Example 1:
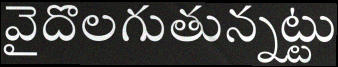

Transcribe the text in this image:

వైదొలగుతున్నట్టు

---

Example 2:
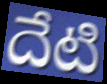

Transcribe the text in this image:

దేటి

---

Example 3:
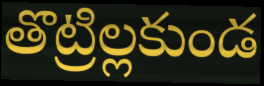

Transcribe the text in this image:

తొట్రిల్లకుండ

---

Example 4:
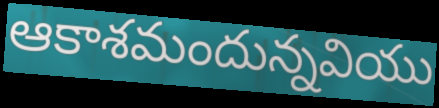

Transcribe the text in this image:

ఆకాశమందున్నవియు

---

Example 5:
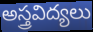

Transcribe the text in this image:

అస్త్రవిద్యలు